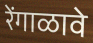
रेंगाळावे